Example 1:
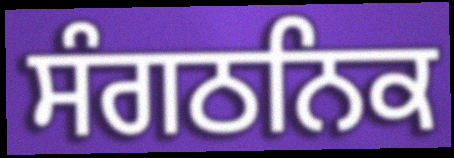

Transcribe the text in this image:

ਸੰਗਠਨਿਕ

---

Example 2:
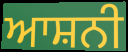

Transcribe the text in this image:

ਆਸ਼ਨੀ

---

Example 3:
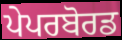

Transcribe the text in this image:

ਪੇਪਰਬੋਰਡ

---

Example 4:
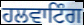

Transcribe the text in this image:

ਹਲਵਾਟਿੰਗ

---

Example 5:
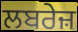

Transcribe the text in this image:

ਲਬਰੇਜ਼